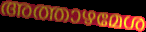
അത്താഴമേശ